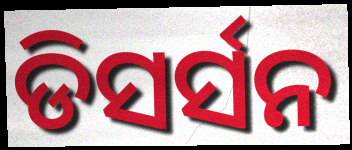
ଡିସର୍ସନ